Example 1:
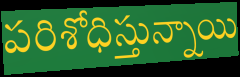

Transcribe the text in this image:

పరిశోధిస్తున్నాయి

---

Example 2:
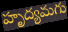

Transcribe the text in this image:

హృద్యమగు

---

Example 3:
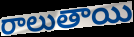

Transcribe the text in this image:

రాలుతాయి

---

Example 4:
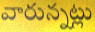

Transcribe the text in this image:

వారున్నట్లు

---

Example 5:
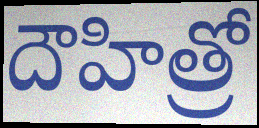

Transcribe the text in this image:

దౌహిత్రో